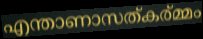
എന്താണാസത്കര്മ്മം